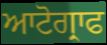
ਆਟੋਗ੍ਰਾਫ